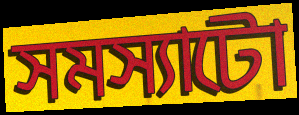
সমস্যাটো